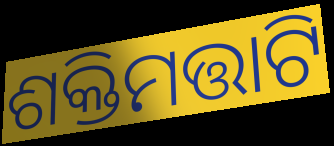
ଶକ୍ତିମତ୍ତାଟି